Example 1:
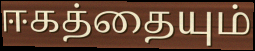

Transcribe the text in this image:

ஈகத்தையும்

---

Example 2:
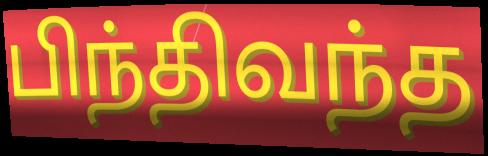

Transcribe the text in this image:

பிந்திவந்த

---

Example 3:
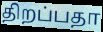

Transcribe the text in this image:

திறப்பதா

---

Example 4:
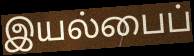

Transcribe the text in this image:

இயல்பைப்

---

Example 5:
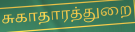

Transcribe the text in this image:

சுகாதாரத்துறை